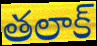
తలాక్